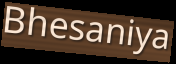
Bhesaniya